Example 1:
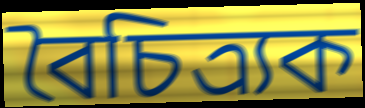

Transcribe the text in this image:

বৈচিত্ৰ্যক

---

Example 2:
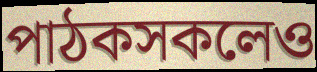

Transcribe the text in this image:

পাঠকসকলেও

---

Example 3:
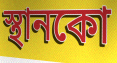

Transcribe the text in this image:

স্থানকো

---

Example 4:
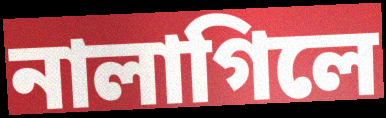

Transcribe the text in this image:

নালাগিলে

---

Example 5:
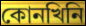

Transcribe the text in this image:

কোনখিনি